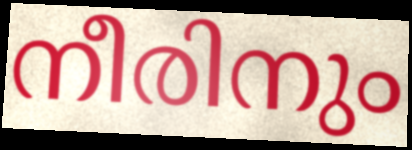
നീരിനും